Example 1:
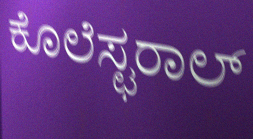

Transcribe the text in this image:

ಕೊಲೆಸ್ಟರಾಲ್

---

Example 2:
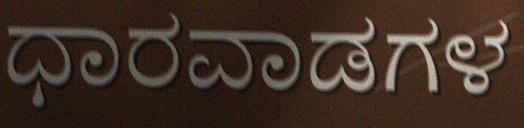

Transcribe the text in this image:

ಧಾರವಾಡಗಳ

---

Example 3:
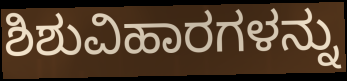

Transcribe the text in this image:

ಶಿಶುವಿಹಾರಗಳನ್ನು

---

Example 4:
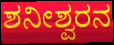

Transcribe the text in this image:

ಶನೀಶ್ವರನ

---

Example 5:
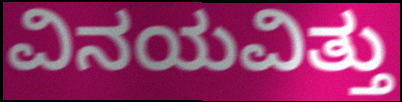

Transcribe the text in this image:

ವಿನಯವಿತ್ತು